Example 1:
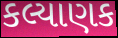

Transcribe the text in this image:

કલ્યાણક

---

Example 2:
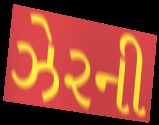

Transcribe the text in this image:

ઝેરની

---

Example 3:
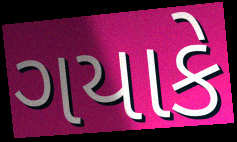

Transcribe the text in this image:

ગયાકે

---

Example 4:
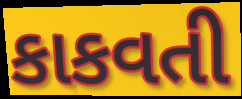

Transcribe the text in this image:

કાકવતી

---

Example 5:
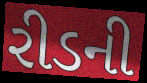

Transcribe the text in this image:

રીડની